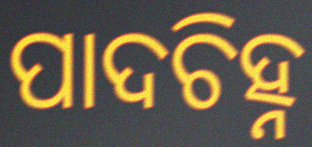
ପାଦଚିହ୍ନ